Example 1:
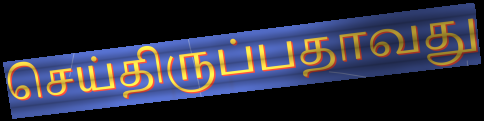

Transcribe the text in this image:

செய்திருப்பதாவது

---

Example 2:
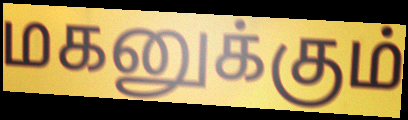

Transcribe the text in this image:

மகனுக்கும்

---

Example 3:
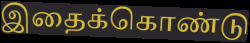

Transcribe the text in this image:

இதைக்கொண்டு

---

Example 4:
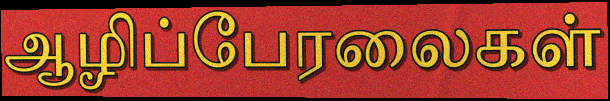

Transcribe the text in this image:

ஆழிப்பேரலைகள்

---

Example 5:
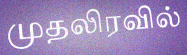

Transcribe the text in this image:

முதலிரவில்